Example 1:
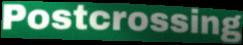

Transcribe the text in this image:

Postcrossing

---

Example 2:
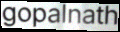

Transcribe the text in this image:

gopalnath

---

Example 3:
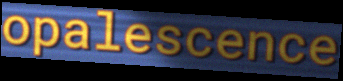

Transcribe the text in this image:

opalescence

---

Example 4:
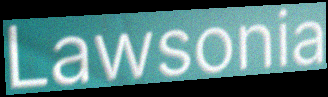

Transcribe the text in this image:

Lawsonia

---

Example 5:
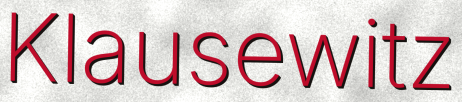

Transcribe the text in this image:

Klausewitz